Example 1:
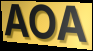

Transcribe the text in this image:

AOA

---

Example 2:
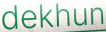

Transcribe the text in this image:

dekhun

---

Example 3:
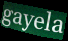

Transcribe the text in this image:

gayela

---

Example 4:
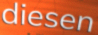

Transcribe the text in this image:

diesen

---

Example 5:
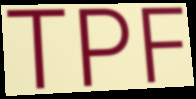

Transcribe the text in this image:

TPF